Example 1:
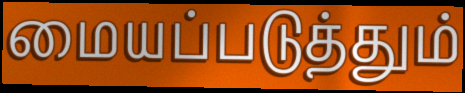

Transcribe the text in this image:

மையப்படுத்தும்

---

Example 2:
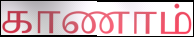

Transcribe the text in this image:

காணாம்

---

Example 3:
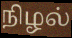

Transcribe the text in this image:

நிழல்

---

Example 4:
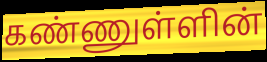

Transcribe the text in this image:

கண்ணுள்ளின்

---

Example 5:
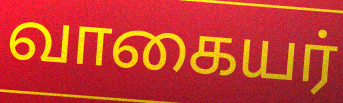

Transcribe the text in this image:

வாகையர்